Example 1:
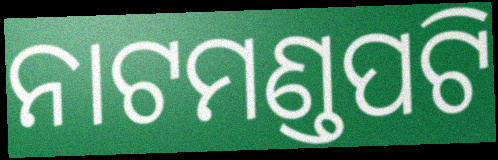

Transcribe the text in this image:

ନାଟମଣ୍ଡପଟି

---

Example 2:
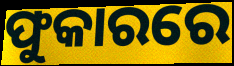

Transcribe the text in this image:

ଫୁକାରରେ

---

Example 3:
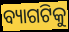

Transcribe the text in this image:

ବ୍ୟାଗଟିକୁ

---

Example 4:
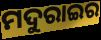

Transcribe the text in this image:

ମଦୁରାଇର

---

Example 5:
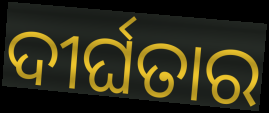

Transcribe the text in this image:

ଦୀର୍ଘତାର